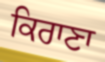
ਕਿਰਾਣਾ